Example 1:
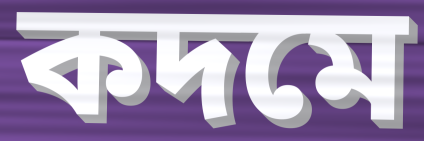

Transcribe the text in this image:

কদমে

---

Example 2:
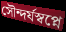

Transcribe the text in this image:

সৌন্দর্যস্বপ্নে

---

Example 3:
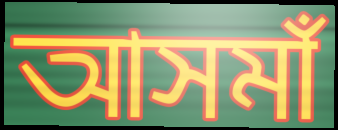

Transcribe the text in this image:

আসমাঁ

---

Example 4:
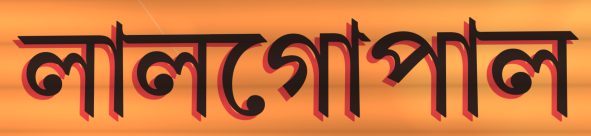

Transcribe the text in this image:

লালগোপাল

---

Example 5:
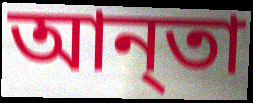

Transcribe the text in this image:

আন্‌তা